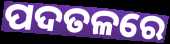
ପଦତଳରେ